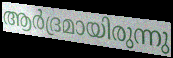
ആർദ്രമായിരുന്നു